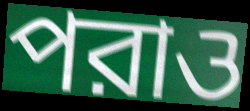
পরাও